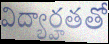
విద్యార్హతతో